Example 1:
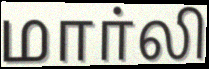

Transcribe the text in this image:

மார்லி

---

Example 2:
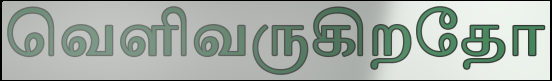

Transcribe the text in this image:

வெளிவருகிறதோ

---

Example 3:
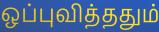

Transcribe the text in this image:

ஒப்புவித்ததும்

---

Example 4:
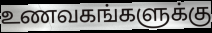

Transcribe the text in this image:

உணவகங்களுக்கு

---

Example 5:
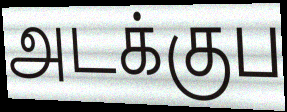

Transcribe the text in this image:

அடக்குப